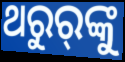
ଥରୁର୍‌ଙ୍କୁ